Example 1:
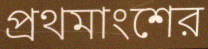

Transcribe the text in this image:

প্রথমাংশের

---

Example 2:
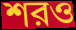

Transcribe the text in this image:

শরও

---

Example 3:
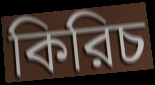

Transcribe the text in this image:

কিরিচ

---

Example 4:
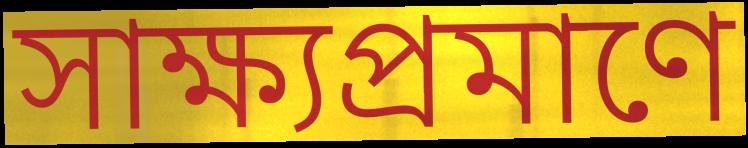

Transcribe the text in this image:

সাক্ষ্যপ্রমাণে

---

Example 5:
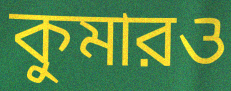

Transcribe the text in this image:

কুমারও